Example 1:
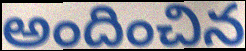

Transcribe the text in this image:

అందించిన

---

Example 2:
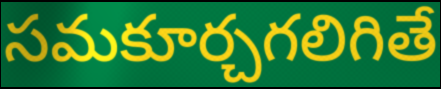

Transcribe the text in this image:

సమకూర్చగలిగితే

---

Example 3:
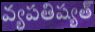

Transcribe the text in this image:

వ్యపతిష్యత్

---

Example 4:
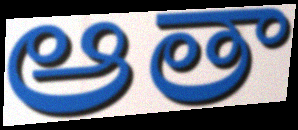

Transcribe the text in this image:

ఆతా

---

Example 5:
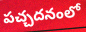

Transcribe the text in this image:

పచ్చదనంలో